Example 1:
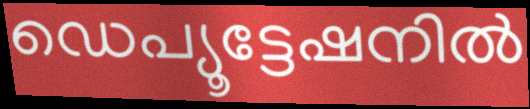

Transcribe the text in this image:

ഡെപ്യൂട്ടേഷനിൽ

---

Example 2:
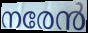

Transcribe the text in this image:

നരേൻ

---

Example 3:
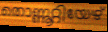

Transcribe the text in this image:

തൊണ്ണൂറ്റിയേഴ്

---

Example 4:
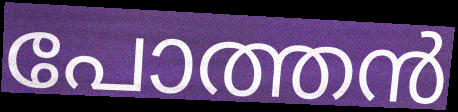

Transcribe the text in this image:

പോത്തൻ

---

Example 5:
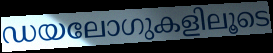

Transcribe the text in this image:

ഡയലോഗുകളിലൂടെ